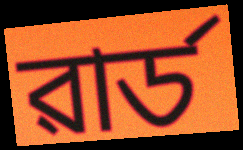
ৱাৰ্ড